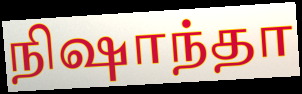
நிஷாந்தா